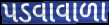
પડવાવાળા